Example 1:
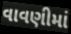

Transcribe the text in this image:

વાવણીમાં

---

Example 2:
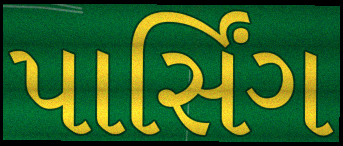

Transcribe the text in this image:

પાર્સિંગ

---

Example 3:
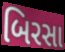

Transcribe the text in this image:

બિરસા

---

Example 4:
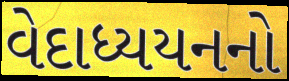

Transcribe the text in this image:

વેદાધ્યયનનો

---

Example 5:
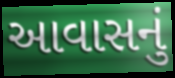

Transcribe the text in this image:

આવાસનું